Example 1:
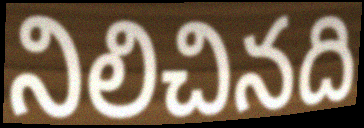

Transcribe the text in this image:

నిలిచినది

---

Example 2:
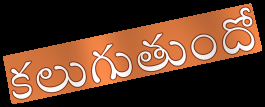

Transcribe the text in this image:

కలుగుతుందో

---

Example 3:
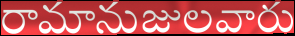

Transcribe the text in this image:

రామానుజులవారు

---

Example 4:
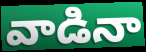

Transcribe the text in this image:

వాడినా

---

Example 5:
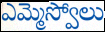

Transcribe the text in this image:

ఎమ్మెస్వోలు